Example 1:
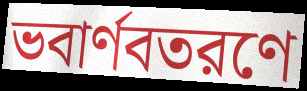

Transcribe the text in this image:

ভবার্ণবতরণে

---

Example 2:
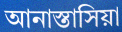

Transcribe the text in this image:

আনাস্তাসিয়া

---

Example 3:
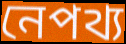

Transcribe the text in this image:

নেপথ্য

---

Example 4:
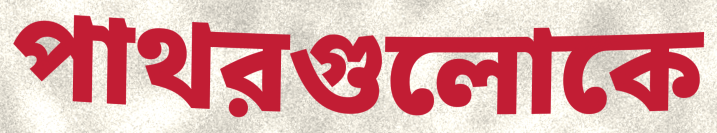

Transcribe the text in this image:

পাথরগুলোকে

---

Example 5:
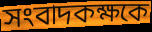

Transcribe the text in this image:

সংবাদকক্ষকে